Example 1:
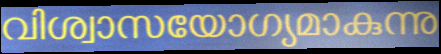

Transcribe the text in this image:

വിശ്വാസയോഗ്യമാകുന്നു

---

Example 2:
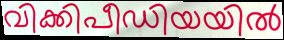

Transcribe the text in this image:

വിക്കിപീഡിയയിൽ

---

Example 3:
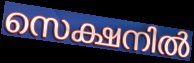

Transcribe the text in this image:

സെക്ഷനിൽ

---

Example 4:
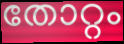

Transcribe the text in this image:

തോറ്റം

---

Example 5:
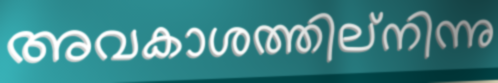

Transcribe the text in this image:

അവകാശത്തില്നിന്നു